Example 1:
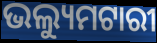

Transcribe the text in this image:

ଭଲ୍ୟୁମଟାରୀ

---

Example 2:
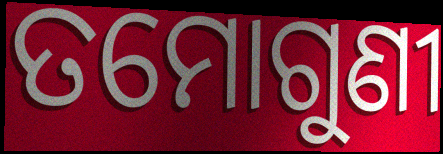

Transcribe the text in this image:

ତମୋଗୁଣୀ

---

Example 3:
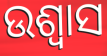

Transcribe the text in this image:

ଉଶ୍ୱାସ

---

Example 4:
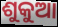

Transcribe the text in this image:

ଶୁକୁଆ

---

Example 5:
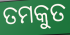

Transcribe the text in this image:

ତମକୁତ